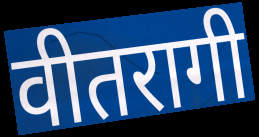
वीतरागी